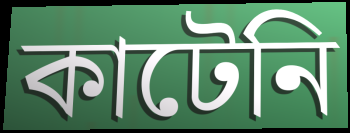
কাটেনি